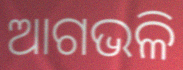
ଆଗଭଳି